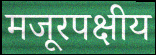
मजूरपक्षीय